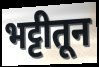
भट्टीतून